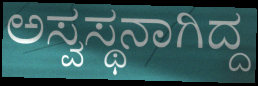
ಅಸ್ವಸ್ಥನಾಗಿದ್ದ